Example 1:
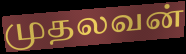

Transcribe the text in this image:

முதலவன்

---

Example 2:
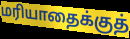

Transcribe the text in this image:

மரியாதைக்குத்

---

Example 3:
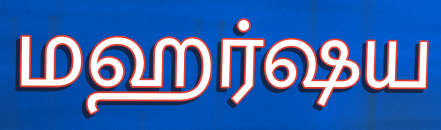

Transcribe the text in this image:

மஹர்ஷய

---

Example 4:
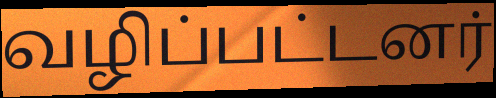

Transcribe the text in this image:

வழிப்பட்டனர்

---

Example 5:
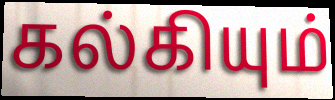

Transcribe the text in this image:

கல்கியும்